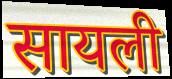
सायली